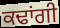
ਕਢਾਂਗੀ